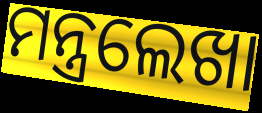
ମନ୍ତ୍ରଲେଖା